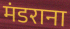
मंडराना